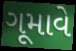
ગૂમાવે